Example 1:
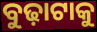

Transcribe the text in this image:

ବୁଢ଼ାଟାକୁ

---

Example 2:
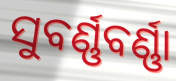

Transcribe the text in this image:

ସୁବର୍ଣ୍ଣବର୍ଣ୍ଣା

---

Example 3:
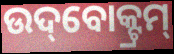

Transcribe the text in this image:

ଉଦ୍‌ବୋକ୍ଟ୍ରମ୍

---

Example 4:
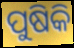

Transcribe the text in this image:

ପୁଷିକି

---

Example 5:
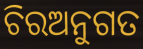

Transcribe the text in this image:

ଚିରଅନୁଗତ